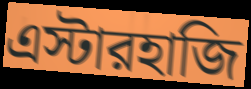
এস্টারহাজি